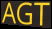
AGT